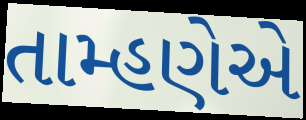
તામ્હણેએ